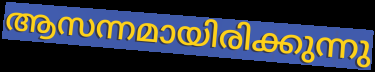
ആസന്നമായിരിക്കുന്നു